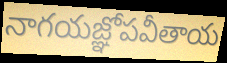
నాగయజ్ఞోపవీతాయ